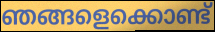
ഞങ്ങളെക്കൊണ്ട്